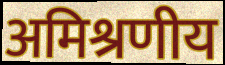
अमिश्रणीय